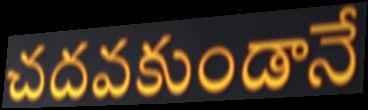
చదవకుండానే